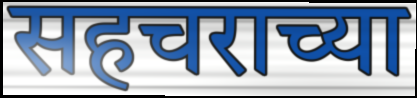
सहचराच्या